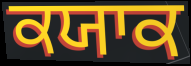
ਕਯਾਕ